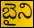
బైని